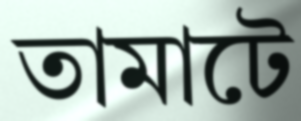
তামাটে